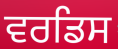
ਵਰਡਿਸ